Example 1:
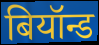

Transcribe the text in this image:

बियॉन्ड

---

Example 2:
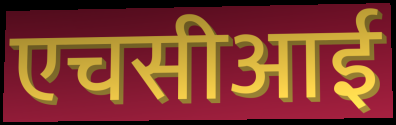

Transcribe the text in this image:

एचसीआई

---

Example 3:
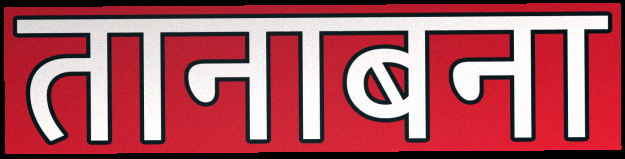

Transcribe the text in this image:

तानाबना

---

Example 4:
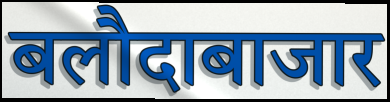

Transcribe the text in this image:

बलौदाबाजार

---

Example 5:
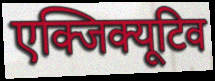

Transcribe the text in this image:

एक्जिक्यूटिव